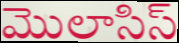
మొలాసిస్